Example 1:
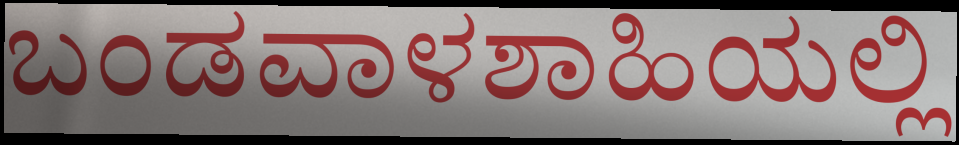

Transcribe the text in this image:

ಬಂಡವಾಳಶಾಹಿಯಲ್ಲಿ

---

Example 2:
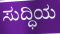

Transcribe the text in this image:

ಸುದ್ಧಿಯ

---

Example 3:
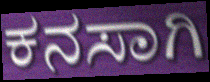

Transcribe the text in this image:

ಕನಸಾಗಿ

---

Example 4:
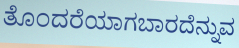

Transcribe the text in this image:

ತೊಂದರೆಯಾಗಬಾರದೆನ್ನುವ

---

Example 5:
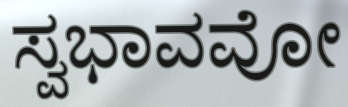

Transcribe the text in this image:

ಸ್ವಭಾವವೋ